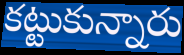
కట్టుకున్నారు